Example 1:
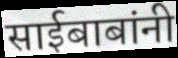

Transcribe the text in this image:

साईबाबांनी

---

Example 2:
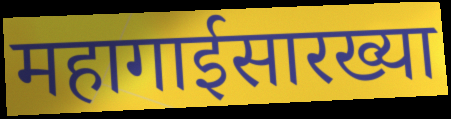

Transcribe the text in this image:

महागाईसारख्या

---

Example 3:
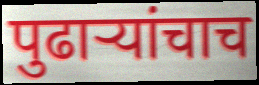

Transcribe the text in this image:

पुढाऱ्यांचाच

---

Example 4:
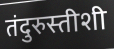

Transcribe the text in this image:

तंदुरुस्तीशी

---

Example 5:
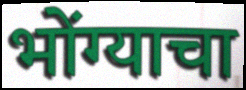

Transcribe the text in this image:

भोंग्याचा